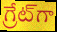
గ్రేట్‌గా